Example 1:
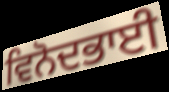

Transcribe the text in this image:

ਵਿਨੋਦਭਾਈ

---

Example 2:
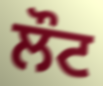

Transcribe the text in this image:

ਲੌਟ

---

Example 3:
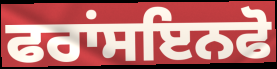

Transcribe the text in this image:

ਫਰਾਂਸਇਨਫੋ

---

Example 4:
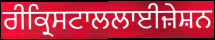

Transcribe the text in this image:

ਰੀਕ੍ਰਿਸਟਾਲਲਾਈਜ਼ੇਸ਼ਨ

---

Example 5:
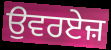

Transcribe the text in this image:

ਉਵਰਏਜ਼